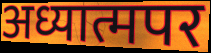
अध्यात्मपर